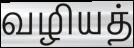
வழியத்